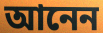
আনেন